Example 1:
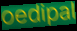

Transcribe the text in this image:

oedipal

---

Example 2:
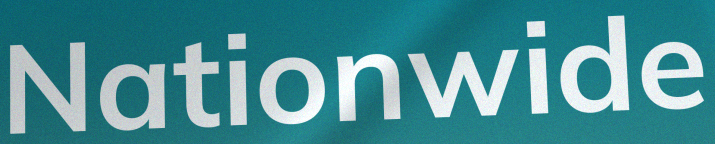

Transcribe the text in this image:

Nationwide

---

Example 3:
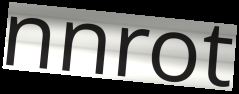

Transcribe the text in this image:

nnrot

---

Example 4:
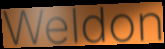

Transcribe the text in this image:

Weldon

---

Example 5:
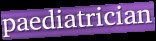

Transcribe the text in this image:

paediatrician